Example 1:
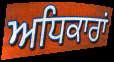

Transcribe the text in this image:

ਅਧਿਕਾਰਾਂ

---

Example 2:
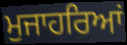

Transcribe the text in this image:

ਮੁਜਾਹਰਿਆਂ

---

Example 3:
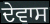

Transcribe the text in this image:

ਦੇਵਾਸ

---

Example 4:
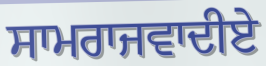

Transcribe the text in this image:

ਸਾਮਰਾਜਵਾਦੀਏ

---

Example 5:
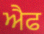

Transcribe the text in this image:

ਐਫ